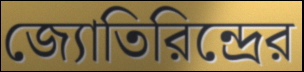
জ্যোতিরিন্দ্রের